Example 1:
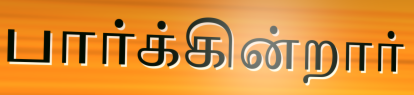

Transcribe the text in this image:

பார்க்கின்றார்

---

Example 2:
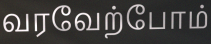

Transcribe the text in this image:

வரவேற்போம்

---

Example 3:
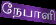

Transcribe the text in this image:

நேபாளி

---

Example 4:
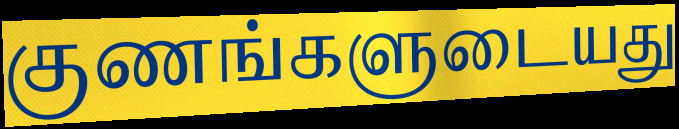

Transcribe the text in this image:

குணங்களுடையது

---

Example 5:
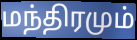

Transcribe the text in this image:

மந்திரமும்